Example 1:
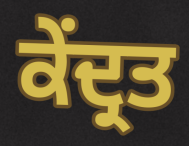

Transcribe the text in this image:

ਕੇਂਦ੍ਰਤ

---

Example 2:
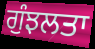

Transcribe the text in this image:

ਗੁੰਝਲਤਾ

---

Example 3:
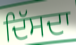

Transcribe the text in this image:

ਦਿੱਸਦਾ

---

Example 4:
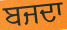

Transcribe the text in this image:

ਬਜਦਾ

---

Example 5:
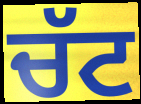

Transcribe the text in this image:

ਚੱਟ